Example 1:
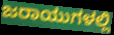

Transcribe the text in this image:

ಜರಾಯುಗಳಲ್ಲಿ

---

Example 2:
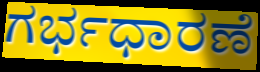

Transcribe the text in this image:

ಗರ್ಭಧಾರಣೆ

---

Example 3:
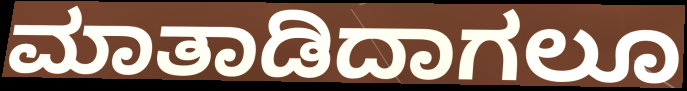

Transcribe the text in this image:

ಮಾತಾಡಿದಾಗಲೂ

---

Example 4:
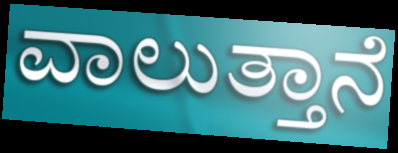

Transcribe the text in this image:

ವಾಲುತ್ತಾನೆ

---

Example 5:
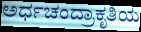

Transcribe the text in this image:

ಅರ್ಧಚಂದ್ರಾಕೃತಿಯ